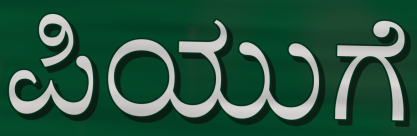
ಪಿಯುಗೆ